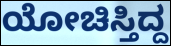
ಯೋಚಿಸ್ತಿದ್ದ